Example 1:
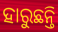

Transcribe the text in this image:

ହାରୁଛନ୍ତି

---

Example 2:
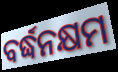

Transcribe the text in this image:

ବର୍ଦ୍ଧନକ୍ଷମ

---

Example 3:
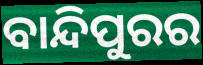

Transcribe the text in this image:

ବାନ୍ଦିପୁରର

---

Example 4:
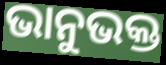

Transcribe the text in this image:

ଭାନୁଭକ୍ତ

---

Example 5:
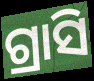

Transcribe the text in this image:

ଗ୍ରାସି